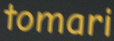
tomari